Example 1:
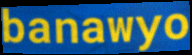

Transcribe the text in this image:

banawyo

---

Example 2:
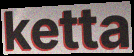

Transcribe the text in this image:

ketta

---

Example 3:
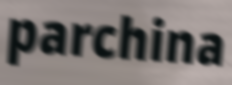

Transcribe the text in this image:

parchina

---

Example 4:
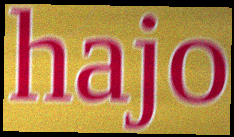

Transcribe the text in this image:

hajo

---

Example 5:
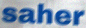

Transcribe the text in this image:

saher